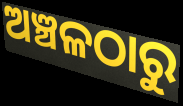
ଅଞ୍ଚଳଠାରୁ